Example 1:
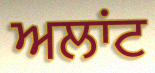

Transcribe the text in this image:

ਅਲਾਂਟ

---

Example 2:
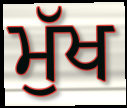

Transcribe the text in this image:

ਮੁੱਖ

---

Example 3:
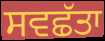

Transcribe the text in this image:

ਸਵਛੱਤਾ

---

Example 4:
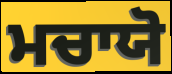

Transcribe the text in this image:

ਮਚਾਯੋ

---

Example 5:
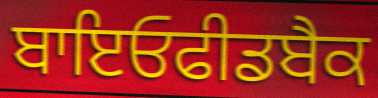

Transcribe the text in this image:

ਬਾਇਓਫੀਡਬੈਕ